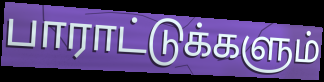
பாராட்டுக்களும்